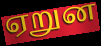
ஏறுன